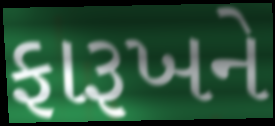
ફારૂખને